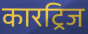
कारट्रिज